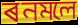
ৰনমলে